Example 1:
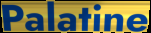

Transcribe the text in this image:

Palatine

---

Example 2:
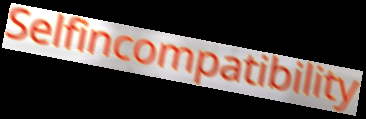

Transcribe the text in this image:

Selfincompatibility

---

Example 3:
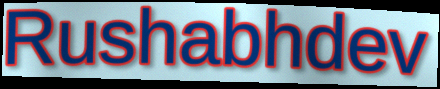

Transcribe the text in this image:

Rushabhdev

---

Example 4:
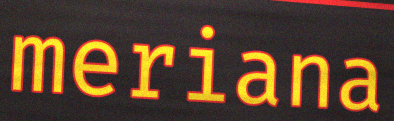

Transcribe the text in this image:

meriana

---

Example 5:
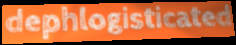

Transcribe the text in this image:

dephlogisticated